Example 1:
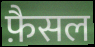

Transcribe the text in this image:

फ़ैसल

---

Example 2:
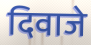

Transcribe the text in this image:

दिवाजे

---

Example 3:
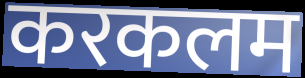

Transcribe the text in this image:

करकलम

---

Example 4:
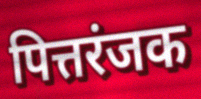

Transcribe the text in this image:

पित्तरंजक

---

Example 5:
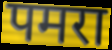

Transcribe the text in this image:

पमरा